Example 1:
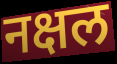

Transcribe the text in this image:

नक्षल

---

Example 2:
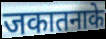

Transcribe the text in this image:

जकातनाके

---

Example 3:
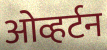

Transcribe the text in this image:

ओव्हर्टन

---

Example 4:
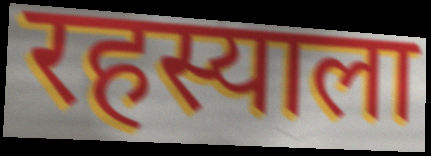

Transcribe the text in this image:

रहस्याला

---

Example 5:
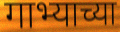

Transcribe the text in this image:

गाभ्याच्या